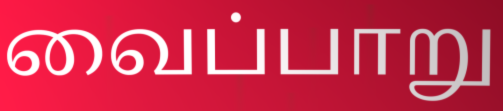
வைப்பாறு